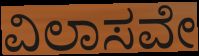
ವಿಲಾಸವೇ